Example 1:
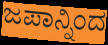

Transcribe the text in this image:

ಜಪಾನ್ನಿಂದ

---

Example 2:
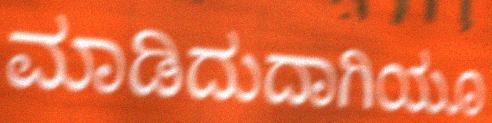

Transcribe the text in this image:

ಮಾಡಿದುದಾಗಿಯೂ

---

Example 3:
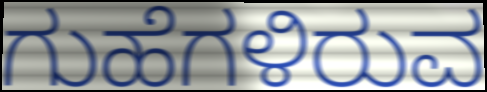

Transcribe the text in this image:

ಗುಹೆಗಳಿರುವ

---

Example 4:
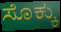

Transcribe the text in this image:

ಸೊಕ್ಕು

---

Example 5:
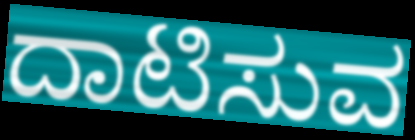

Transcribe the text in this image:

ದಾಟಿಸುವ